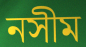
নসীম